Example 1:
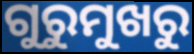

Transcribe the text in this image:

ଗୁରୁମୁଖରୁ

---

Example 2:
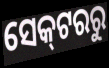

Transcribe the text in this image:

ସେକ୍‌ଟରରୁ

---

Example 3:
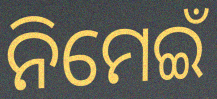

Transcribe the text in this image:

ନିମେଇଁ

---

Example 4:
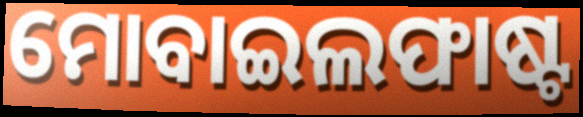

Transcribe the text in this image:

ମୋବାଇଲଫାଷ୍ଟ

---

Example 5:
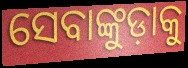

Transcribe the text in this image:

ସେବାଙ୍କୁଡ଼ାକୁ